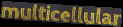
multicellular